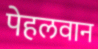
पेहलवान